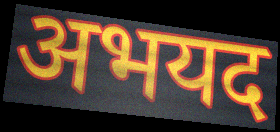
अभयद